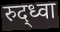
रुद्ध्वा